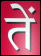
तें